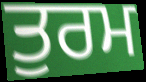
ਤੁਰਮ